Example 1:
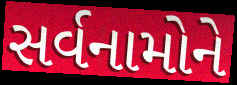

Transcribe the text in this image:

સર્વનામોને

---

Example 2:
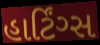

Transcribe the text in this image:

હાર્ટિંગ્સ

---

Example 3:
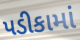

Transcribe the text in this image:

પડીકામાં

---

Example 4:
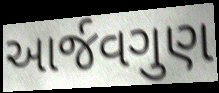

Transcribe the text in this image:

આર્જવગુણ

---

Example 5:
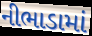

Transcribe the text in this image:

નીભાડામાં